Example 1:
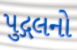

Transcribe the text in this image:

પુદ્ગલનો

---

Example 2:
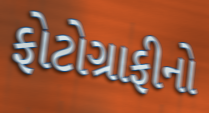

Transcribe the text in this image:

ફોટોગ્રાફીનો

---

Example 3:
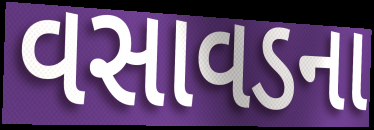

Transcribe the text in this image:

વસાવડના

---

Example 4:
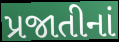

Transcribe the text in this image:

પ્રજાતીનાં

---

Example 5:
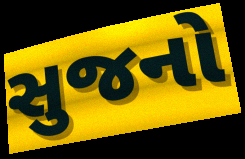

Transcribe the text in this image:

સુજનો